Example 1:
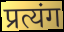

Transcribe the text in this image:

प्रत्यंग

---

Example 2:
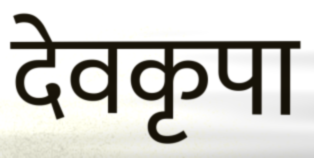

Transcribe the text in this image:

देवकृपा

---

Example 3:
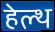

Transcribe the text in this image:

हेल्थ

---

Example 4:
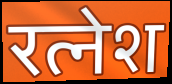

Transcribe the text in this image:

रत्नेश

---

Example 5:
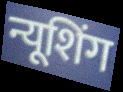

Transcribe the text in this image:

न्यूशिंग